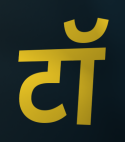
टॉ